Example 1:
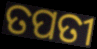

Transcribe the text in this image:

ତପତୀ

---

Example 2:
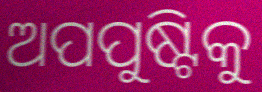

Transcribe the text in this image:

ଅପପୁଷ୍ଟିକୁ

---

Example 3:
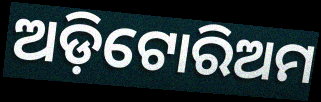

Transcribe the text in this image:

ଅଡ଼ିଟୋରିଅମ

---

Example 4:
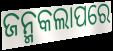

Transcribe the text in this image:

ଜନ୍ମକଲାପରେ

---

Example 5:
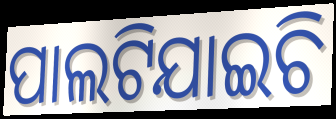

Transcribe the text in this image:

ପାଲଟିଯାଇଚି